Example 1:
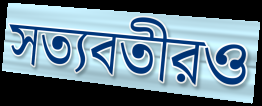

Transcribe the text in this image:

সত্যবতীরও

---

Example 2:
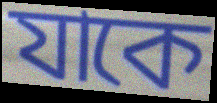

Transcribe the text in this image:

যাকে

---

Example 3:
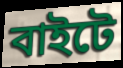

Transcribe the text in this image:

বাইটে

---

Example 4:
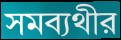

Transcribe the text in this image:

সমব্যথীর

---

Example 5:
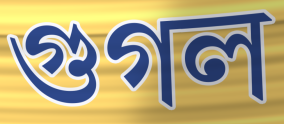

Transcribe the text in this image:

গুগল